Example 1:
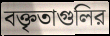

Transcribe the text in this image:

বক্তৃতাগুলির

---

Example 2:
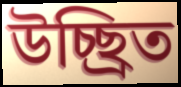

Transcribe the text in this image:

উচ্ছ্রিত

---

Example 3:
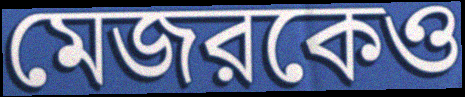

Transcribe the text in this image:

মেজরকেও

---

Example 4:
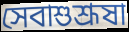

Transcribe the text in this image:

সেবাশুশ্রূষা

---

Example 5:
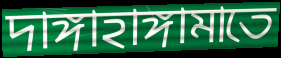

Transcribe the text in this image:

দাঙ্গাহাঙ্গামাতে